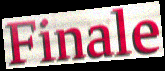
Finale